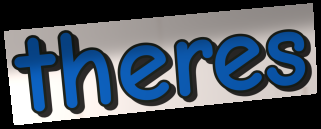
theres